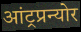
आंट्रप्रन्योर